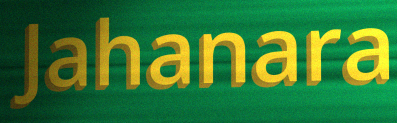
Jahanara